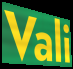
Vali